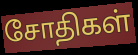
சோதிகள்